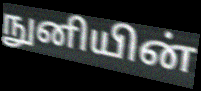
நுனியின்